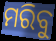
ମରିବୁ